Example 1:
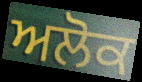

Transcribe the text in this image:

ਅਲੋਕ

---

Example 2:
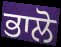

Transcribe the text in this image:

ਭਾਲੋ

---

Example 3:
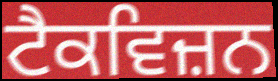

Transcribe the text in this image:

ਟੈਕਵਿਜ਼ਨ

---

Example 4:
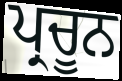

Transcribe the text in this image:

ਪ੍ਰਚੂਨ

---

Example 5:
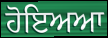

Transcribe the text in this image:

ਹੋਇਅਆ